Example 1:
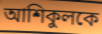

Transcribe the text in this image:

আশিকুলকে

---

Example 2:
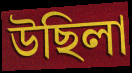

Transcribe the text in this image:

উছিলা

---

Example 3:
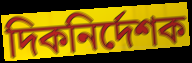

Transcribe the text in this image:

দিকনির্দেশক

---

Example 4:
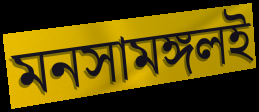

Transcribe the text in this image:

মনসামঙ্গলই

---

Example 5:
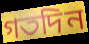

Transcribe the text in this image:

গতদিন